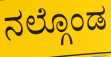
ನಲ್ಗೊಂಡ